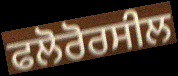
ਫਲੋਰੋਰਸੀਲ